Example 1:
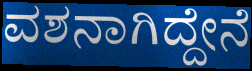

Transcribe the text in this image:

ವಶನಾಗಿದ್ದೇನೆ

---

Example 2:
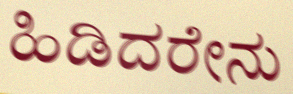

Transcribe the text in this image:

ಹಿಡಿದರೇನು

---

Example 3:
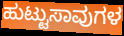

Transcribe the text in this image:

ಹುಟ್ಟುಸಾವುಗಳ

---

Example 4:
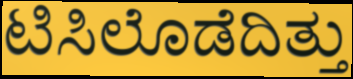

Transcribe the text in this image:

ಟಿಸಿಲೊಡೆದಿತ್ತು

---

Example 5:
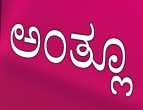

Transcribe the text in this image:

ಅಂತ್ಲೂ